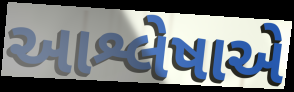
આશ્લેષાએ